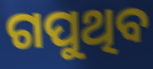
ଗପୁଥିବ